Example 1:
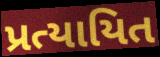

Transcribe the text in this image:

પ્રત્યાયિત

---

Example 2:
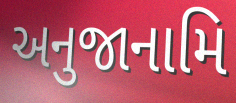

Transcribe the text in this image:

અનુજાનામિ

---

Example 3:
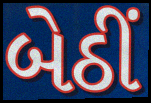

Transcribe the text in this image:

બેઠીં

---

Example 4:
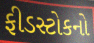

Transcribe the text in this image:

ફીડસ્ટોકનો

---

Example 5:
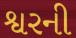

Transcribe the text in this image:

શ્વરની